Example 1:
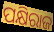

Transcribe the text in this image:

ପକ୍ଷିରାଜ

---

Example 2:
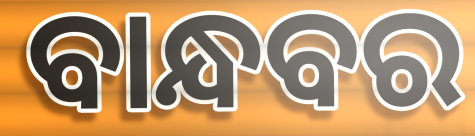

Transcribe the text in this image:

ବାନ୍ଧବର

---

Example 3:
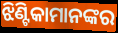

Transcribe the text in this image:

ଝିଣ୍ଟିକାମାନଙ୍କର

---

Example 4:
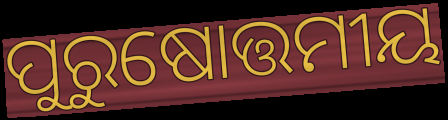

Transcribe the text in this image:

ପୁରୁଷୋତ୍ତମୀୟ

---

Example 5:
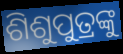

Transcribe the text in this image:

ଶିଶୁପୁତ୍ରଙ୍କୁ